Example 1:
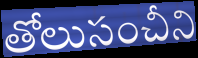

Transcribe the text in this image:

తోలుసంచీని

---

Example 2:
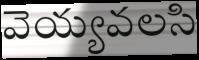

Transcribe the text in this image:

వెయ్యవలసి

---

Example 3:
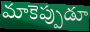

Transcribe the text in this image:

మాకెప్పుడూ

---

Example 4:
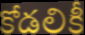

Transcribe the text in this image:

కోడలికీ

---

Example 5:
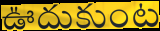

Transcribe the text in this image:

ఊదుకుంట